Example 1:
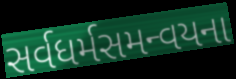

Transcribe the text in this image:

સર્વધર્મસમન્વયના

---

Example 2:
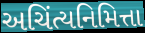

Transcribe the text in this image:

અચિંત્યનિમિત્તા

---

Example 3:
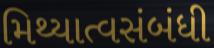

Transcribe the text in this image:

મિથ્યાત્વસંબંધી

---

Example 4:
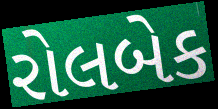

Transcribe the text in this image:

રોલબેક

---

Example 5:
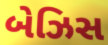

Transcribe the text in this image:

બેઝિસ